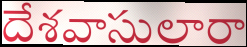
దేశవాసులారా